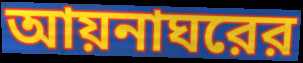
আয়নাঘরের